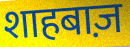
शाहबाज़